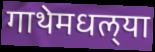
गाथेमधल्या